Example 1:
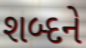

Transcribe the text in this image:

શબ્દને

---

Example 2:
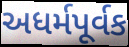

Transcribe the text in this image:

અધર્મપૂર્વક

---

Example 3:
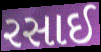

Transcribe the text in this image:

રસાઈ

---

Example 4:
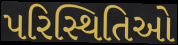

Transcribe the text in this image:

પરિસ્થિતિઓ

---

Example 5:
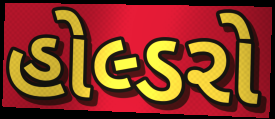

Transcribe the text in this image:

હોલ્ડરો